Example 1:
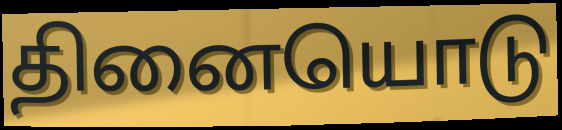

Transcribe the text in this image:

தினையொடு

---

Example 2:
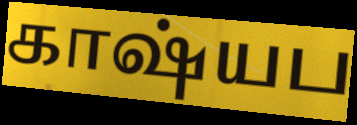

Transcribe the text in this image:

காஷ்யப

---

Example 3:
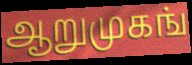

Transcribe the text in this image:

ஆறுமுகங்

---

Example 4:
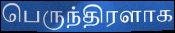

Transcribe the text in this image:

பெருந்திரளாக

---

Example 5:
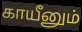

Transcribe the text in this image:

காயீனும்